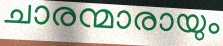
ചാരന്മാരായും